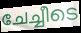
ചേച്ചീടെ